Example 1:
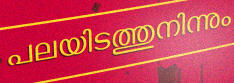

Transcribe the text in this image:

പലയിടത്തുനിന്നും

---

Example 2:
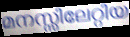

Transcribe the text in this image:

മനസ്സിലേറ്റിയ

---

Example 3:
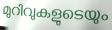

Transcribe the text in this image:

മുറിവുകളുടെയും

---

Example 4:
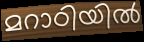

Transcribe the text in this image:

മറാഠിയിൽ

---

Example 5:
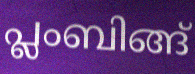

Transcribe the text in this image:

പ്ലംബിങ്ങ്